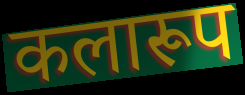
कलारूप